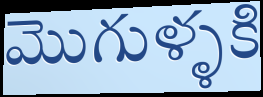
మొగుళ్ళకి